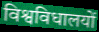
विश्वविधालयों